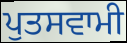
ਪੁਤਸਵਾਮੀ